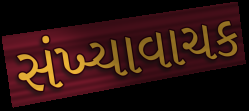
સંખ્યાવાચક